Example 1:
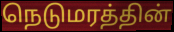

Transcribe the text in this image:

நெடுமரத்தின்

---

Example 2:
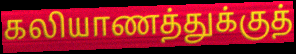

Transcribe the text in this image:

கலியாணத்துக்குத்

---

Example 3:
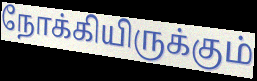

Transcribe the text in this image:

நோக்கியிருக்கும்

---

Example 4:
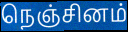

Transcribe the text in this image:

நெஞ்சினம்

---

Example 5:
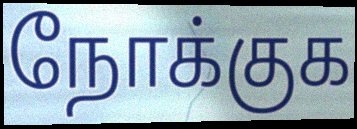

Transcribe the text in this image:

நோக்குக